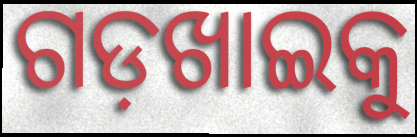
ଗଡ଼ଖାଇକୁ